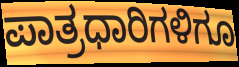
ಪಾತ್ರಧಾರಿಗಳಿಗೂ